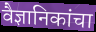
वैज्ञानिकांचा